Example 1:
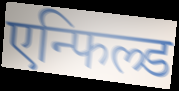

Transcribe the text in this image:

एन्फिल्ड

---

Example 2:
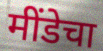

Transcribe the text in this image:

मींडेचा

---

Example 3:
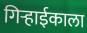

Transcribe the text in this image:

गिर्‍हाईकाला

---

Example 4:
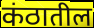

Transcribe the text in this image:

कंठातील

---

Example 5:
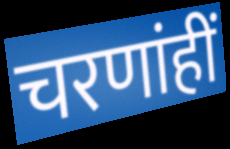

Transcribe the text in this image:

चरणांहीं